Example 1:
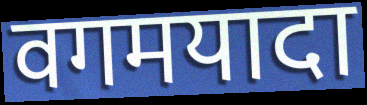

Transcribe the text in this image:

वगमयादा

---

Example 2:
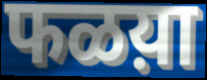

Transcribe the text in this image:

फळय़ा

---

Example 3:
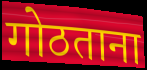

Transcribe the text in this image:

गोठताना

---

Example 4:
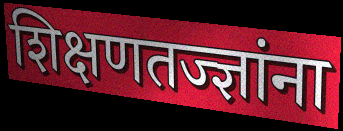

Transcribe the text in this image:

शिक्षणतज्ज्ञांना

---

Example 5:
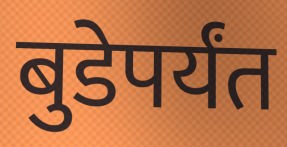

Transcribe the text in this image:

बुडेपर्यंत